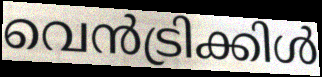
വെൻട്രിക്കിൾ